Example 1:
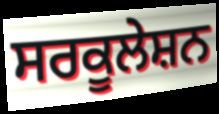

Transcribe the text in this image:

ਸਰਕੂਲੇਸ਼ਨ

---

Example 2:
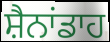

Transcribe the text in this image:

ਸ਼ੈਨਾਂਡਾਹ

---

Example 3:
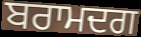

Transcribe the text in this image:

ਬਰਾਮਦਗ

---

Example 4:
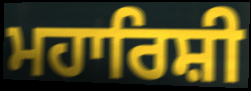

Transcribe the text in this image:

ਮਹਾਰਿਸ਼ੀ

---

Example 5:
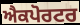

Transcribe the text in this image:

ਐਕਪੋਰਟਰ